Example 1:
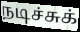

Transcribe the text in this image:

நடிச்சுக்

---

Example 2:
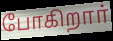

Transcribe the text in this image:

போகிறார்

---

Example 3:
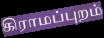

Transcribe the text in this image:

கிராமப்புறம்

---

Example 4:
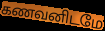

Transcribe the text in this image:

கணவனிடமே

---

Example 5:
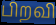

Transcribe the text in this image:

பிறவி